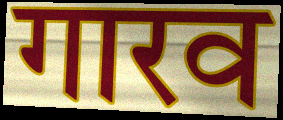
गारव